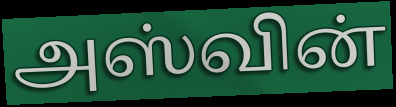
அஸ்வின்